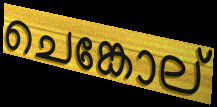
ചെങ്കോല്